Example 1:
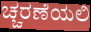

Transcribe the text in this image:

ಚ್ಚರಣೆಯಲಿ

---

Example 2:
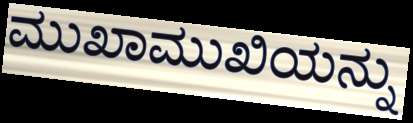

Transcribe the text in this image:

ಮುಖಾಮುಖಿಯನ್ನು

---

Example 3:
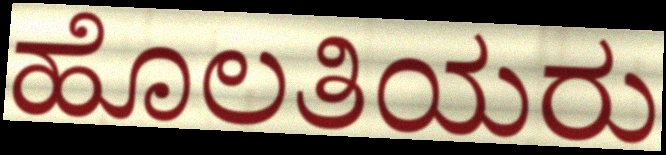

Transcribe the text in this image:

ಹೊಲತಿಯರು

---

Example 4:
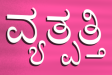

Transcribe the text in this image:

ವ್ಯತ್ಪತ್ತಿ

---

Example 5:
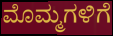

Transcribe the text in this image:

ಮೊಮ್ಮಗಳಿಗೆ